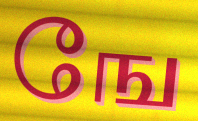
ஙே